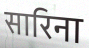
सारिना